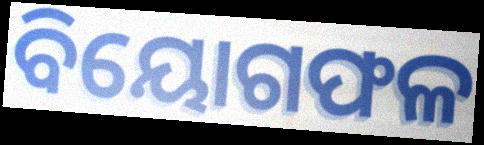
ବିୟୋଗଫଳ